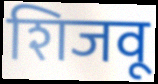
शिजवू